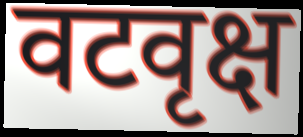
वटवृक्ष